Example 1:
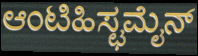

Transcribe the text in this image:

ಆಂಟಿಹಿಸ್ಟಮೈನ್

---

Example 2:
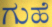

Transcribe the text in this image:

ಗುಹೆ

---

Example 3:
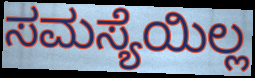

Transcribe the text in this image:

ಸಮಸ್ಯೆಯಿಲ್ಲ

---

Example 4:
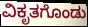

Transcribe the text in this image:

ವಿಕೃತಗೊಂಡು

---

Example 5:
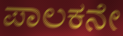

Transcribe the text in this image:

ಪಾಲಕನೇ